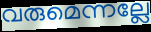
വരുമെന്നല്ലേ